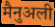
मैनुअली